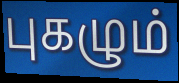
புகழும்